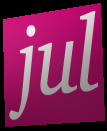
jul